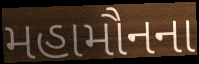
મહામૌનના